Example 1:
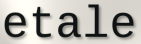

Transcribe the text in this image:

etale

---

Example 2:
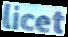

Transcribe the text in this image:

licet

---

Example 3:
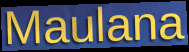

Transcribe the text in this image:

Maulana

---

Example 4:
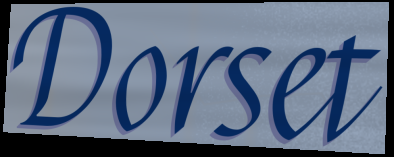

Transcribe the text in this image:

Dorset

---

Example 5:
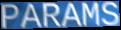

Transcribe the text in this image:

PARAMS